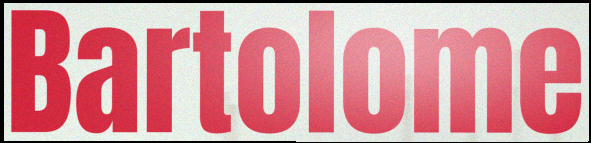
Bartolome